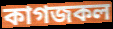
কাগজকল